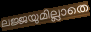
ലജ്ജയുമില്ലാതെ